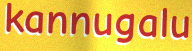
kannugalu